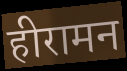
हीरामन